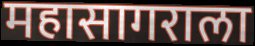
महासागराला